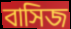
বাসিজ